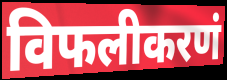
विफलीकरणं